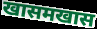
खासमखास